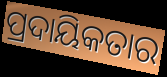
ପ୍ରଦାୟିକତାର